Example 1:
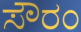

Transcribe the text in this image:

ಸೌರಂ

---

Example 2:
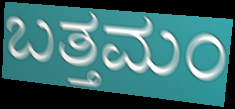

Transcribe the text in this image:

ಬತ್ತಮಂ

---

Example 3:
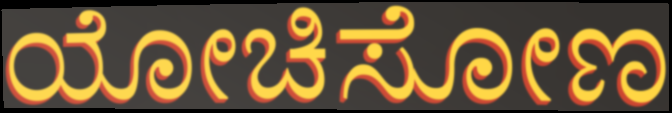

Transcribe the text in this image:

ಯೋಚಿಸೋಣ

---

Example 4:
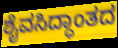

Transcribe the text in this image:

ಶೈವಸಿದ್ಧಾಂತದ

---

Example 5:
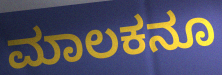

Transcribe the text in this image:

ಮಾಲಕನೂ